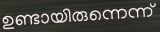
ഉണ്ടായിരുന്നെന്ന്